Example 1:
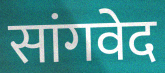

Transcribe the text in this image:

सांगवेद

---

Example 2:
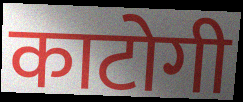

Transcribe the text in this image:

काटोगी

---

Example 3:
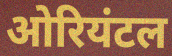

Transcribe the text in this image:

ओरियंटल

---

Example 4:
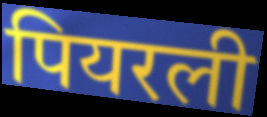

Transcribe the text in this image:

पियरली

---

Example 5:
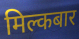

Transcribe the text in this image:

मिल्कबार